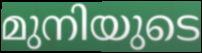
മുനിയുടെ